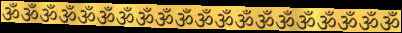
ॐॐॐॐॐॐॐॐॐॐॐॐॐॐॐॐॐॐॐॐ